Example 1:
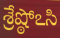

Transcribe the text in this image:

శ్రేష్ఠోఽసి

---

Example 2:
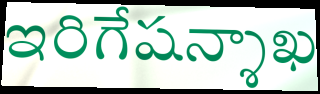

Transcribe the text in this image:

ఇరిగేషన్శాఖ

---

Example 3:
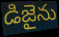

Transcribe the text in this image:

డిజైను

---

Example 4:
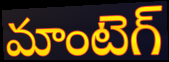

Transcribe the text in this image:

మాంటెగ్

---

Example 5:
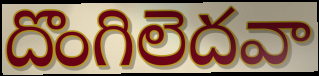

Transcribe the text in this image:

దొంగిలెదవా